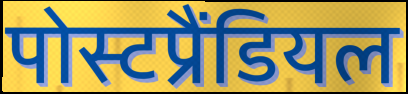
पोस्टप्रैंडियल